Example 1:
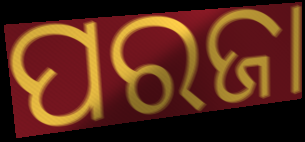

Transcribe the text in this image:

ପରଜା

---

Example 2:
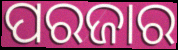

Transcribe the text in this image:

ପରଜାର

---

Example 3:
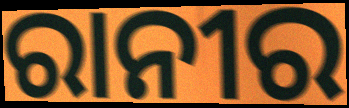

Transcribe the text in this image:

ରାନୀର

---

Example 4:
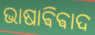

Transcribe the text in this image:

ଭାଷାଵିଵାଦ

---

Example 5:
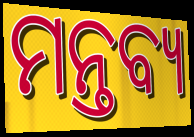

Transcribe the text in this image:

ମନ୍ତବ୍ୟ